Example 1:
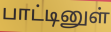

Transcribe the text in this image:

பாட்டினுள்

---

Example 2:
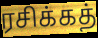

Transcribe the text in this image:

ரசிக்கத்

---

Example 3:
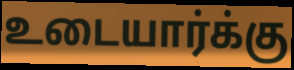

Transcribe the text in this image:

உடையார்க்கு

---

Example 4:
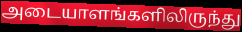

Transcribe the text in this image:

அடையாளங்களிலிருந்து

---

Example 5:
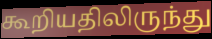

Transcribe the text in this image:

கூறியதிலிருந்து